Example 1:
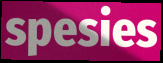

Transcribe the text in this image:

spesies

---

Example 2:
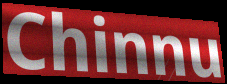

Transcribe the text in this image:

Chinnu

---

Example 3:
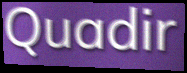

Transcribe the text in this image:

Quadir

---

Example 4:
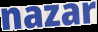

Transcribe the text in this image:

nazar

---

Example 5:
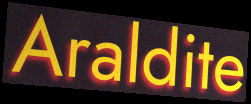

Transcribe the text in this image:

Araldite